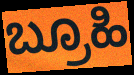
ಬ್ರೂಹಿ